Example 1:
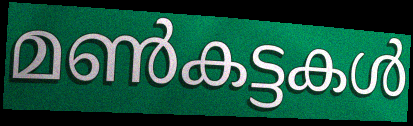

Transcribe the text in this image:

മൺകട്ടകൾ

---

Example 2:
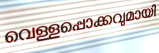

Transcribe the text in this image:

വെള്ളപ്പൊക്കവുമായി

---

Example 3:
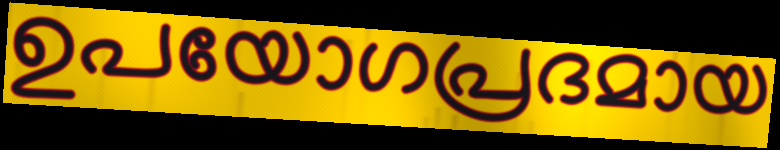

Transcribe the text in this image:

ഉപയോഗപ്രദമായ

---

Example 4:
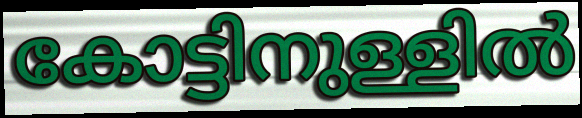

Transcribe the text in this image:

കോട്ടിനുള്ളിൽ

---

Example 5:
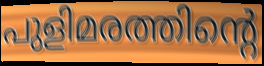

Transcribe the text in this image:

പുളിമരത്തിന്റെ